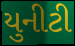
યુનીટી